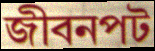
জীবনপট